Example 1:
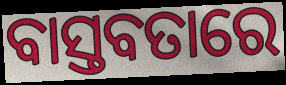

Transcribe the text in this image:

ବାସ୍ତବତାରେ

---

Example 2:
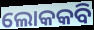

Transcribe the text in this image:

ଲୋକକବି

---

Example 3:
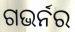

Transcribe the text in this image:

ଗଭର୍ନର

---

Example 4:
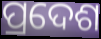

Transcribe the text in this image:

ପ୍ରଦେଶ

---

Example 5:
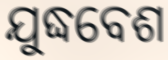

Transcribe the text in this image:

ଯୁଦ୍ଧବେଶ